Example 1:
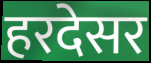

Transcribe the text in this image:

हरदेसर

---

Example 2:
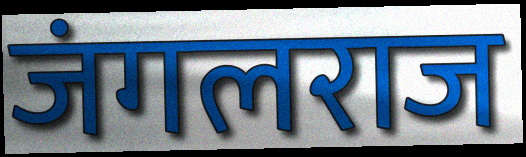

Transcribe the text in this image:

जंगलराज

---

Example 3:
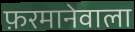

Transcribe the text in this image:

फ़रमानेवाला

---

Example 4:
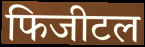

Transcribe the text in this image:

फिजीटल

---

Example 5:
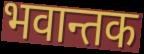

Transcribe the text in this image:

भवान्तक